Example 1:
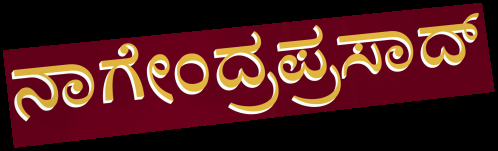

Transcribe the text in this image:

ನಾಗೇಂದ್ರಪ್ರಸಾದ್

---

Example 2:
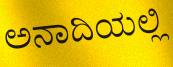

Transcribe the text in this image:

ಅನಾದಿಯಲ್ಲಿ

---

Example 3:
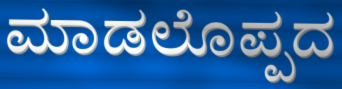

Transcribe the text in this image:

ಮಾಡಲೊಪ್ಪದ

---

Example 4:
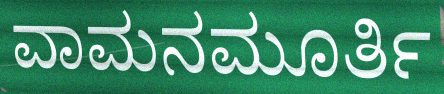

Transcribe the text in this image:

ವಾಮನಮೂರ್ತಿ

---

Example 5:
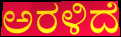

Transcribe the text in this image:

ಅರಳಿದೆ